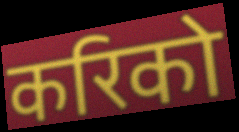
करिको